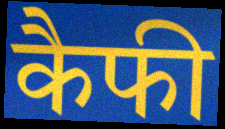
कैफी